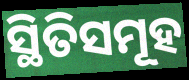
ସ୍ଥିତିସମୂହ